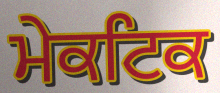
ਮੇਕਟਿਕ